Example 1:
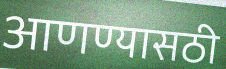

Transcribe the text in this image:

आणण्यासठी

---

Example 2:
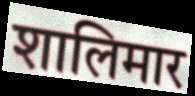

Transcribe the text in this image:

शालिमार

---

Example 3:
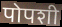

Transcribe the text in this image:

पोपशी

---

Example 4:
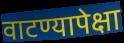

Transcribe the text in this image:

वाटण्यापेक्षा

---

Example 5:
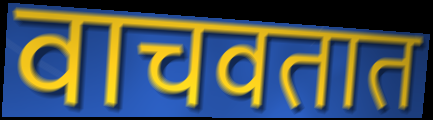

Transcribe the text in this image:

वाचवतात